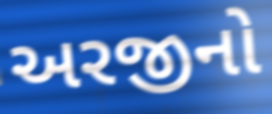
અરજીનો